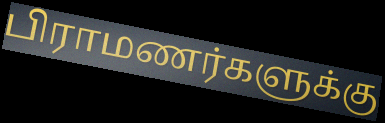
பிராமணர்களுக்கு